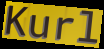
Kurl